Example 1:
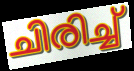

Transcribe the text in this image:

ചിരിച്ച്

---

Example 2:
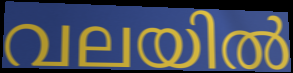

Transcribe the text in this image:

വലയിൽ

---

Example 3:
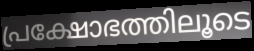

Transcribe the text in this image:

പ്രക്ഷോഭത്തിലൂടെ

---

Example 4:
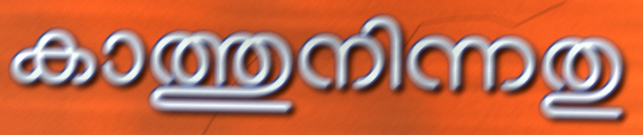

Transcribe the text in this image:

കാത്തുനിന്നതു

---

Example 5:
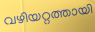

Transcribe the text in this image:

വഴിയറ്റത്തായി